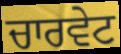
ਚਾਰਵੇਟ